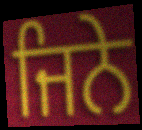
ਜਿਨੇ